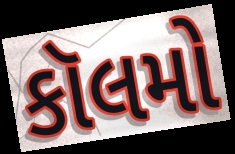
કૉલમો